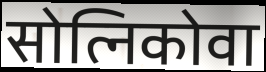
सोत्निकोवा